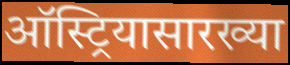
ऑस्ट्रियासारख्या